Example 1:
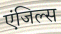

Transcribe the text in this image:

एंजिल्स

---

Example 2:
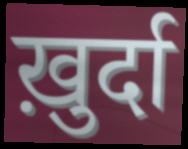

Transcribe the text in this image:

ख़ुर्दा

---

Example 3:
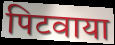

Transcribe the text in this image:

पिटवाया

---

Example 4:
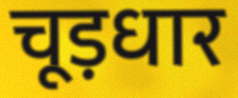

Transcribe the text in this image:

चूड़धार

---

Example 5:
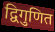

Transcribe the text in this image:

द्विगुणित